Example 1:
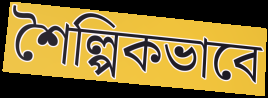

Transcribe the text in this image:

শৈল্পিকভাবে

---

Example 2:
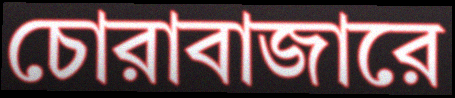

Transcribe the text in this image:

চোরাবাজারে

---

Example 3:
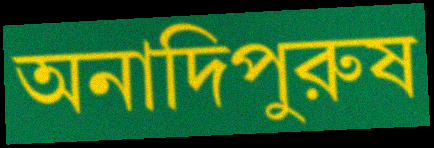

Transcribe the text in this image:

অনাদিপুরুষ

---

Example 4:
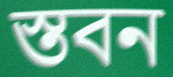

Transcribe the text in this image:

স্তবন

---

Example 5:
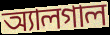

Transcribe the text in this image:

অ্যালগাল